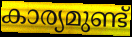
കാര്യമുണ്ട്